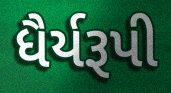
ધૈર્યરૂપી